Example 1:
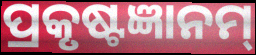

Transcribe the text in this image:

ପ୍ରକୃଷ୍ଟଜ୍ଞାନମ୍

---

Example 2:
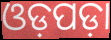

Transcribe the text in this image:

ଓଡ଼ପଡ଼ା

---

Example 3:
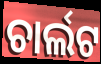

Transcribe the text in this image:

ଚାର୍ଲଟ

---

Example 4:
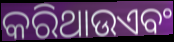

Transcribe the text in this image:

କରିଥାଉଏବଂ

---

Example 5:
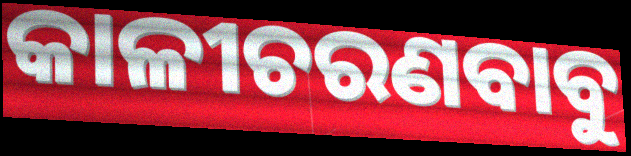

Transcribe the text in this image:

କାଳୀଚରଣବାବୁ